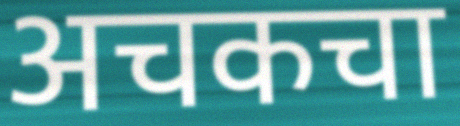
अचकचा